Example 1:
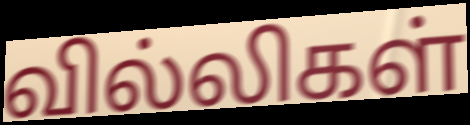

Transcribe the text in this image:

வில்லிகள்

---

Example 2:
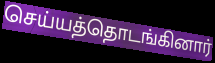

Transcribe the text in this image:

செய்யத்தொடங்கினார்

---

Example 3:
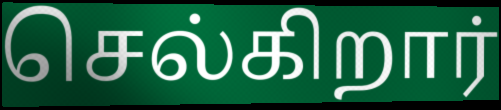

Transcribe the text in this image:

செல்கிறார்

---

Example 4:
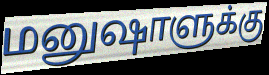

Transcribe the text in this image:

மனுஷாளுக்கு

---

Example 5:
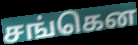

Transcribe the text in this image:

சங்கென